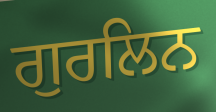
ਗੁਰਲਿਨ